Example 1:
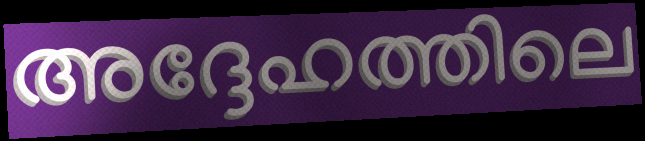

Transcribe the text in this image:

അദ്ദേഹത്തിലെ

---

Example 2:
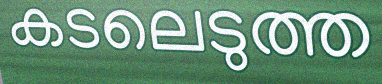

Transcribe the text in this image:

കടലെടുത്ത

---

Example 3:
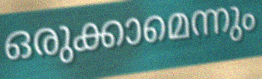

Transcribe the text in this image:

ഒരുക്കാമെന്നും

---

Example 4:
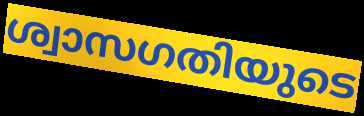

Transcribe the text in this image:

ശ്വാസഗതിയുടെ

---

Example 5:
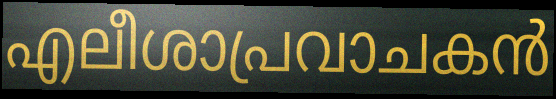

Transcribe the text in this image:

എലീശാപ്രവാചകൻ